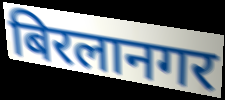
बिरलानगर